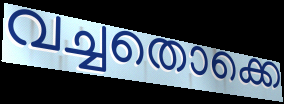
വച്ചതൊക്കെ